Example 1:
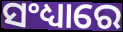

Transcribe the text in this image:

ସଂଧ୍ୟାରେ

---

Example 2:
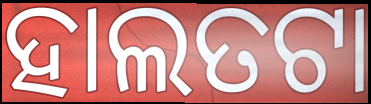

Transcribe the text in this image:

ହାଲତଟା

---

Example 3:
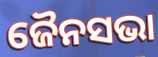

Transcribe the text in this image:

ଜୈନସଭା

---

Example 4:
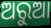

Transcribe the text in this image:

ଅରୁଆ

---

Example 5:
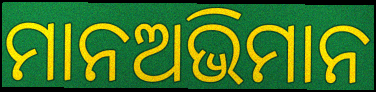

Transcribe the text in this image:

ମାନଅଭିମାନ